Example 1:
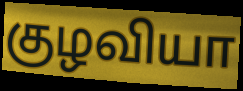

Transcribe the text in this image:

குழவியா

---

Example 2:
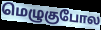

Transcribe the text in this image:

மெழுகுபோல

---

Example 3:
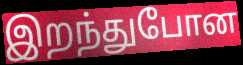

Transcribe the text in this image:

இறந்துபோன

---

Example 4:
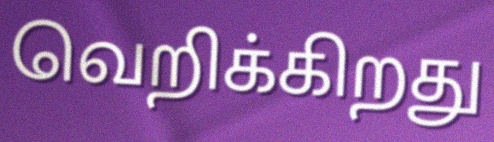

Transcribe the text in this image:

வெறிக்கிறது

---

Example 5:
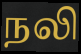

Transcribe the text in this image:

நலி